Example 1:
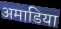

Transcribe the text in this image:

अमाडिया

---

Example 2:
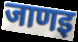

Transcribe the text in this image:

जाणइ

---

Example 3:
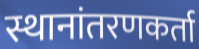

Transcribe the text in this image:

स्थानांतरणकर्ता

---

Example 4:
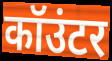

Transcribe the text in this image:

कॉउंटर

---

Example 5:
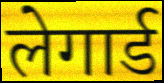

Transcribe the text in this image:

लेगार्ड